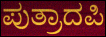
ಪುತ್ರಾದಪಿ